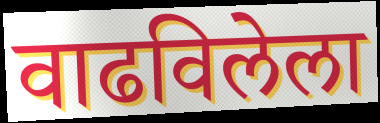
वाढविलेला